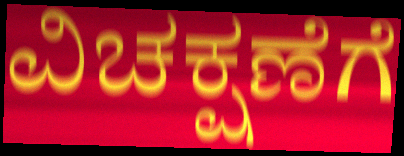
ವಿಚಕ್ಷಣೆಗೆ